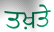
ਤਖ਼ਤੇ